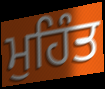
ਮੁਹਿੰਤ